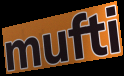
mufti